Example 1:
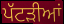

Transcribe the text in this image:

ਪੱਟੜੀਆਂ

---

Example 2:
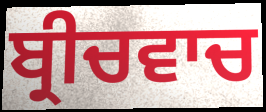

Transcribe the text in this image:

ਬ੍ਰੀਚਵਾਚ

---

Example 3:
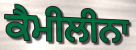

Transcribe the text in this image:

ਕੈਮੀਲੀਨਾ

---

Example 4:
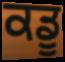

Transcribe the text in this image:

ਕਡੂ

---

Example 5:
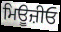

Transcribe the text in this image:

ਮਿਊਜ਼ੀਓ